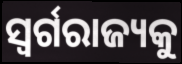
ସ୍ଵର୍ଗରାଜ୍ୟକୁ